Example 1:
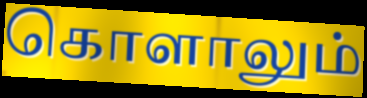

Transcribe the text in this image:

கொளாலும்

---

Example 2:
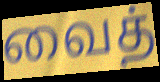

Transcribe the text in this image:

வைத்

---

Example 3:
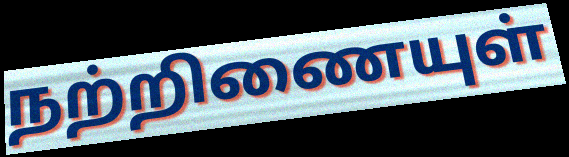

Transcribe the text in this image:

நற்றிணையுள்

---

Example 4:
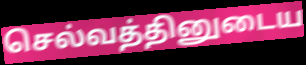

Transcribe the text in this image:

செல்வத்தினுடைய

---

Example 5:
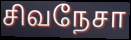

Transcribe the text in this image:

சிவநேசா